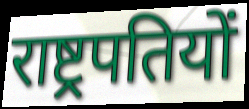
राष्ट्रपतियों